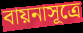
বায়নাসূত্রে